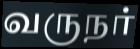
வருநர்